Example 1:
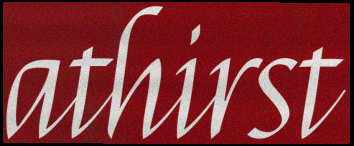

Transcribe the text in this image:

athirst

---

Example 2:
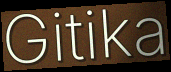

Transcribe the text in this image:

Gitika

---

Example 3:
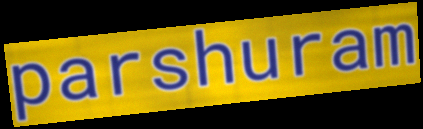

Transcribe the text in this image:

parshuram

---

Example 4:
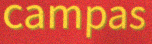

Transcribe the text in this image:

campas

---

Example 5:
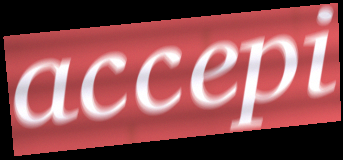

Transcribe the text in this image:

accepi